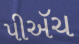
પીઍચ